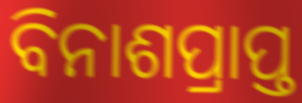
ବିନାଶପ୍ରାପ୍ତ